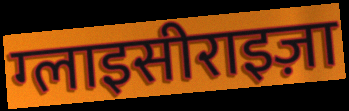
ग्लाइसीराइज़ा